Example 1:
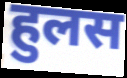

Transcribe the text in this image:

हुलस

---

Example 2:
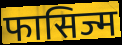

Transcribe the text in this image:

फासिज्म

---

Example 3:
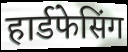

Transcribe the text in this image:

हार्डफेसिंग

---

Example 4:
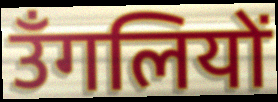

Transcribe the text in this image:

उँगलियों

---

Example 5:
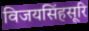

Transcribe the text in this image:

विजयसिंहसूरि